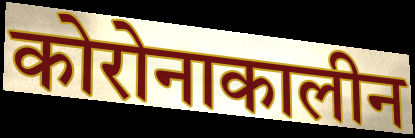
कोरोनाकालीन